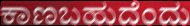
ಕಾಣಬಹುದೆಂದು